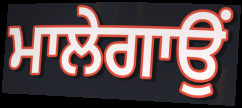
ਮਾਲੇਗਾਉਂ